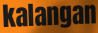
kalangan